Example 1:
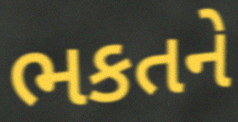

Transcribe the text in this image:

ભકતને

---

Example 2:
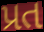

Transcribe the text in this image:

પ્રત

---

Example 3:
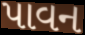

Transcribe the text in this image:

પાવન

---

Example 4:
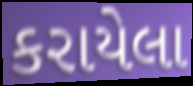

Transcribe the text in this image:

કરાયેલા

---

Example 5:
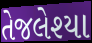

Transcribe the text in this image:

તેજલેશ્યા